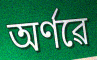
অৰ্ণৱে